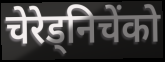
चेरेड्निचेंको